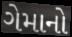
ગેમાનો